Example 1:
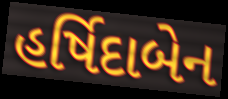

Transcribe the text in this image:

હર્ષિદાબેન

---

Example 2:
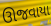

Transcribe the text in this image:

ઊજવાયા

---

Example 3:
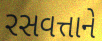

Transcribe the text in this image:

રસવત્તાને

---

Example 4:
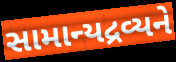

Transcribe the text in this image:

સામાન્યદ્રવ્યને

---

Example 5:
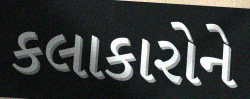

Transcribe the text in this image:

કલાકારોને